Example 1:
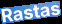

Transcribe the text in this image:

Rastas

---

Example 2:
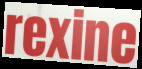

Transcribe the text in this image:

rexine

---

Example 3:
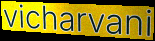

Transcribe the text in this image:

vicharvani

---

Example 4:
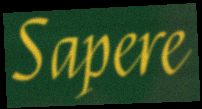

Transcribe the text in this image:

Sapere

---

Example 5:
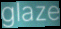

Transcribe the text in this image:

glaze